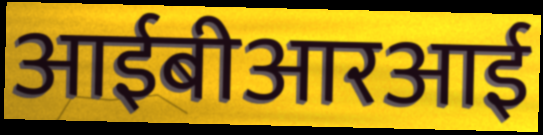
आईबीआरआई